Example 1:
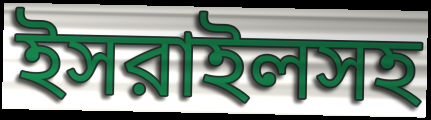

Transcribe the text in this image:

ইসরাইলসহ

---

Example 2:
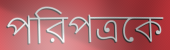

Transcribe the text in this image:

পরিপত্রকে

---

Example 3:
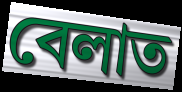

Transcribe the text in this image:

বেলাত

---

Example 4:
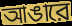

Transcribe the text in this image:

আঙারে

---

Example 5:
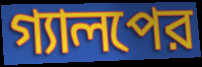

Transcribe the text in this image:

গ্যালপের